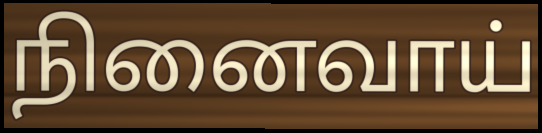
நினைவாய்